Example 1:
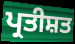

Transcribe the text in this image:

ਪ੍ਰਤੀਸ਼ਤ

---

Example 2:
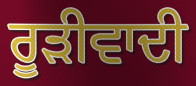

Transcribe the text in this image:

ਰੂੜੀਵਾਦੀ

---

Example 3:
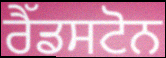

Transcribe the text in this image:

ਰੈੱਡਸਟੋਨ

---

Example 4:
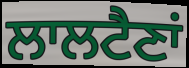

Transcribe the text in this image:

ਲਾਲਟੈਣਾਂ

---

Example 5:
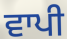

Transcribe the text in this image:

ਵਾਪੀ